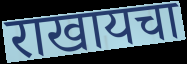
राखायचा